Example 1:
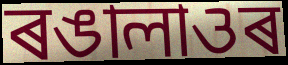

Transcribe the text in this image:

ৰঙালাওৰ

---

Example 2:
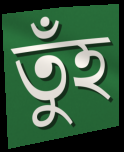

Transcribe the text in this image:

তুঁহ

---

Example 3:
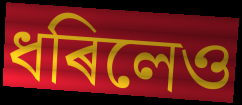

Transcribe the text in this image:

ধৰিলেও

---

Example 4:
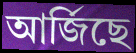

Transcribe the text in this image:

আৰ্জিছে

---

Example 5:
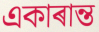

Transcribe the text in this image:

একাৰান্ত